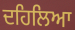
ਦਹਿਲਿਆ